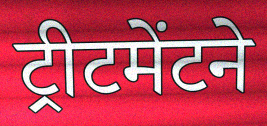
ट्रीटमेंटने